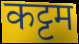
कट्टम